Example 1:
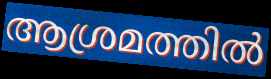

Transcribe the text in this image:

ആശ്രമത്തിൽ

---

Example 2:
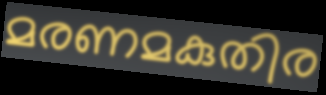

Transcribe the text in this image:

മരണമകുതിര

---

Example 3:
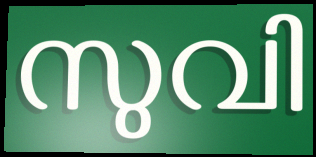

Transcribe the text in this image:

സുവി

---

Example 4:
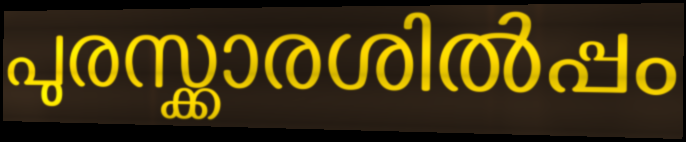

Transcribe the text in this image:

പുരസ്ക്കാരശിൽപ്പം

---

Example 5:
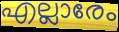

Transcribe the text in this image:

എല്ലാരേം